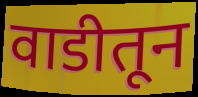
वाडीतून